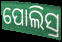
ପୋଲିସ୍ର